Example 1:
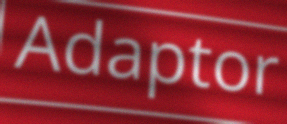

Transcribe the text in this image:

Adaptor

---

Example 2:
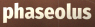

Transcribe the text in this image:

phaseolus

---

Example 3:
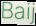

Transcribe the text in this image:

Baij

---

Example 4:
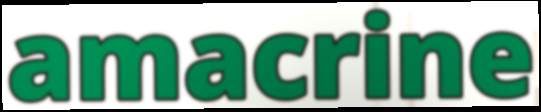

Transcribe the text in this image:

amacrine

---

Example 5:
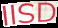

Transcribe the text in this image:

IISD